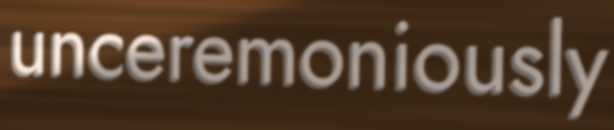
unceremoniously